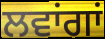
ਲਵਾਂਗਾਂ